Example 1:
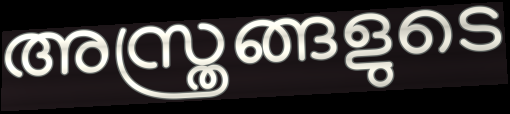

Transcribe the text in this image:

അസ്ത്രങ്ങളുടെ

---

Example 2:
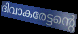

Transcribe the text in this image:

ദിവാകരേട്ടന്റെ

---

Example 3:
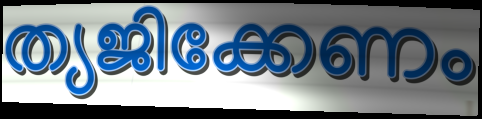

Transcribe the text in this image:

ത്യജിക്കേണം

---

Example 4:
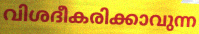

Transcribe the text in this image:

വിശദീകരിക്കാവുന്ന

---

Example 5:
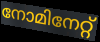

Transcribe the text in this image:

നോമിനേറ്റ്